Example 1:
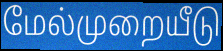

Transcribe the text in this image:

மேல்முறையீடு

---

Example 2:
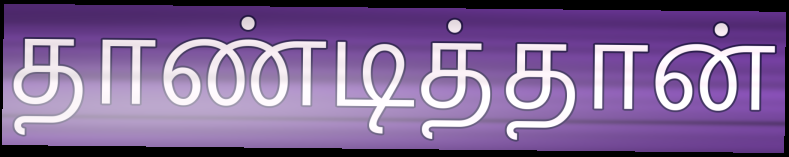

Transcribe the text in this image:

தாண்டித்தான்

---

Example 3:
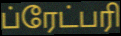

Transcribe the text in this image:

ப்ரேட்பரி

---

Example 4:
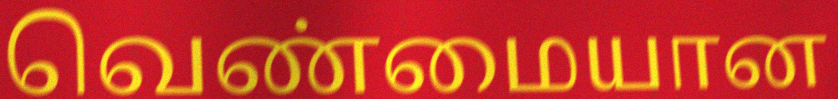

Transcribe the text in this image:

வெண்மையான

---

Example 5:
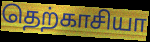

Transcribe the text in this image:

தெற்காசியா